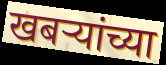
खबऱ्यांच्या